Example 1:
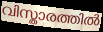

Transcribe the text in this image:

വിസ്താരത്തിൽ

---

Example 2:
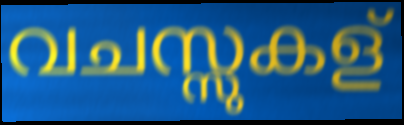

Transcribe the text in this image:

വചസ്സുകള്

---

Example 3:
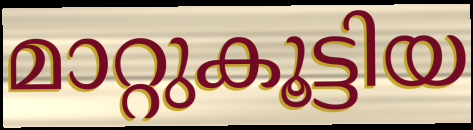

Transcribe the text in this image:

മാറ്റുകൂട്ടിയ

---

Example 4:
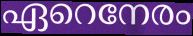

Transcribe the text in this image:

ഏറെനേരം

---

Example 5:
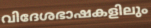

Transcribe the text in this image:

വിദേശഭാഷകളിലും